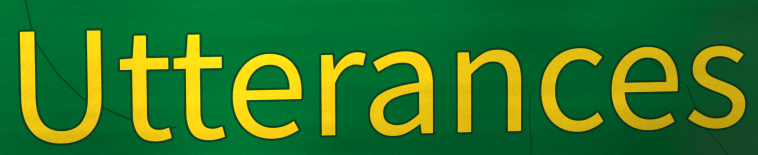
Utterances